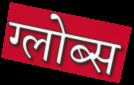
ग्लोब्स